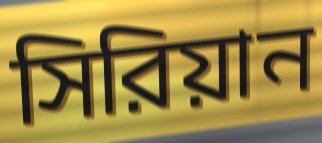
সিরিয়ান